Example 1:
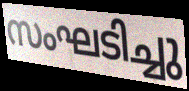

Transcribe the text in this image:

സംഘടിച്ചു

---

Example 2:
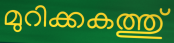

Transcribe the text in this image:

മുറിക്കകത്തു്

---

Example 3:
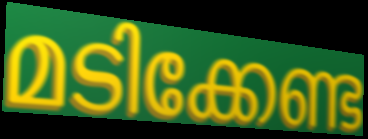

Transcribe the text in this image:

മടിക്കേണ്ട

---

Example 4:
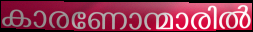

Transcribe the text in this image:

കാരണോന്മാരിൽ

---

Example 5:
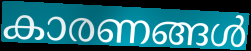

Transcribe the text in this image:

കാരണങ്ങൾ